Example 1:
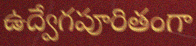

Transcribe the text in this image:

ఉద్వేగపూరితంగా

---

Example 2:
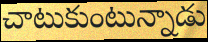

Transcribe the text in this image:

చాటుకుంటున్నాడు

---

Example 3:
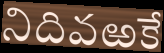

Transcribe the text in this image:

నిదివఱకే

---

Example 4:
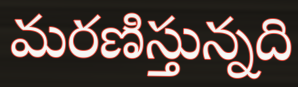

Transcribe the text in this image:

మరణిస్తున్నది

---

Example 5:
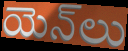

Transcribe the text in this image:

యెన్‌లు